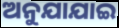
ଅନୁଯାଯାଇ